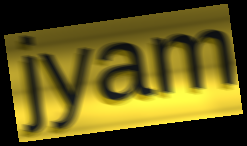
jyam